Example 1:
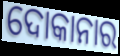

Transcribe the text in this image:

ଦୋକାନାର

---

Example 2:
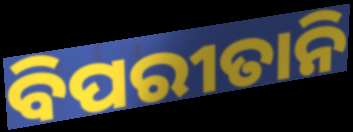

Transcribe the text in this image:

ବିପରୀତାନି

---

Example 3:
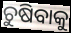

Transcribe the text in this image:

ଚୁଷିବାକୁ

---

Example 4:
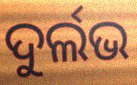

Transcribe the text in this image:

ଦୁର୍ଲଭ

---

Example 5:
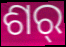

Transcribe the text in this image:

ଶର୍